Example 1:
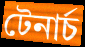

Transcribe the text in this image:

টেনাৰ্চ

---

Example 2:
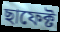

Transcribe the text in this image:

ছাফেক্ট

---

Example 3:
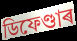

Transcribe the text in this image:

ডিফেণ্ডাৰ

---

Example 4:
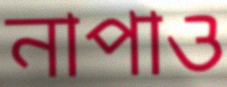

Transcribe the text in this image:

নাপাও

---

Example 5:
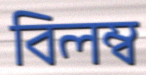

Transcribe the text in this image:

বিলম্ব